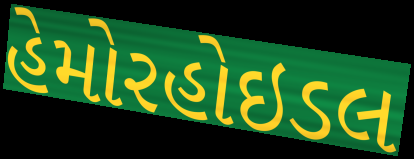
હેમોરહોઇડલ